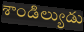
శాండిల్యుడు